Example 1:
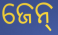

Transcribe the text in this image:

ଜେନ୍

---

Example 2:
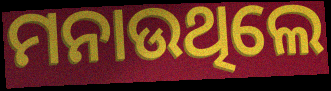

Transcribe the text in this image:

ମନାଉଥିଲେ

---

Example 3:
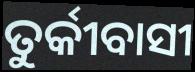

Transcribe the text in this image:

ତୁର୍କୀବାସୀ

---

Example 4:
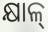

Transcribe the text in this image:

କ୍ଷାଳ୍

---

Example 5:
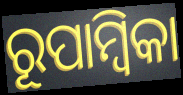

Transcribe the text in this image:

ରୂପାମ୍ୱିକା